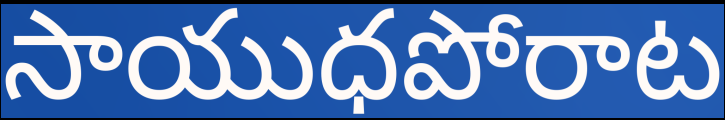
సాయుధపోరాట